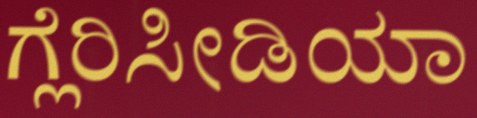
ಗ್ಲೆರಿಸೀಡಿಯಾ